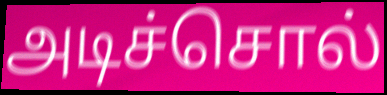
அடிச்சொல்